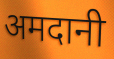
अमदानी